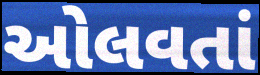
ઓલવતાં